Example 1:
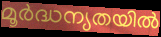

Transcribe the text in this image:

മൂർദ്ധന്യതയിൽ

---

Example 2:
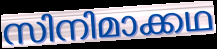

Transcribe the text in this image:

സിനിമാക്കഥ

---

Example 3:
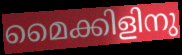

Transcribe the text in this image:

മൈക്കിളിനു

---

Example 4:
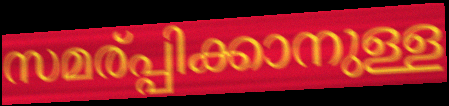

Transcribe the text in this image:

സമര്പ്പിക്കാനുള്ള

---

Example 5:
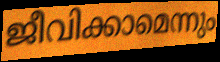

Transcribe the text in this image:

ജീവിക്കാമെന്നും